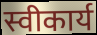
स्वीकार्य